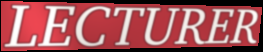
LECTURER